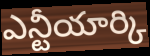
ఎన్టీయార్కి